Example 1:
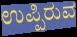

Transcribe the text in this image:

ಉಪ್ಪಿರುವ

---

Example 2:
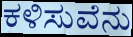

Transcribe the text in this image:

ಕಳಿಸುವೆನು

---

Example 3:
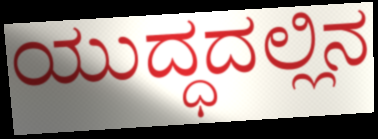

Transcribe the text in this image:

ಯುದ್ಧದಲ್ಲಿನ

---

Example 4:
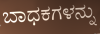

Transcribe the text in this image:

ಬಾಧಕಗಳನ್ನು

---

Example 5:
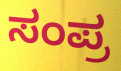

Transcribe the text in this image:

ಸಂಪ್ರ